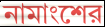
নামাংশের